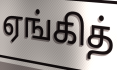
ஏங்கித்